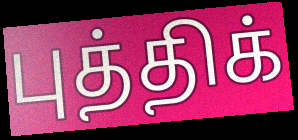
புத்திக்